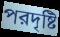
পরদৃষ্টি